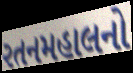
રતનમહાલનો